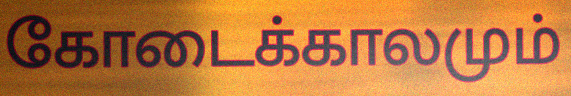
கோடைக்காலமும்